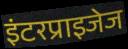
इंटरप्राइजेज